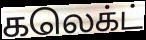
கலெக்ட்